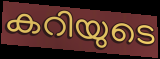
കറിയുടെ